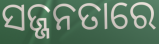
ସଜ୍ଜନତାରେ